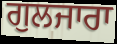
ਗੁਲਜਾਰਾ